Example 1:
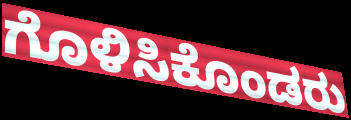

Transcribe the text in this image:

ಗೊಳಿಸಿಕೊಂಡರು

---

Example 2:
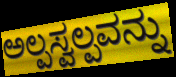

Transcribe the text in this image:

ಅಲ್ಪಸ್ವಲ್ಪವನ್ನು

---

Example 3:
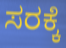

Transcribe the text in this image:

ಸರಕ್ಕೆ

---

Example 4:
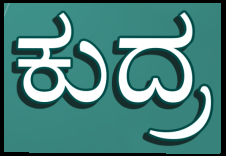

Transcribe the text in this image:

ಕುದ್ರ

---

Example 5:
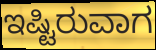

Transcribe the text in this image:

ಇಷ್ಟಿರುವಾಗ